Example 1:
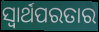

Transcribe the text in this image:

ସ୍ଵାର୍ଥପରତାର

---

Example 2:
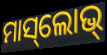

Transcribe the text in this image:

ମାସ୍‌ଲୋଭ୍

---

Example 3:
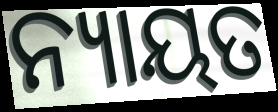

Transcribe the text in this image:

ନ୍ୟାୟତ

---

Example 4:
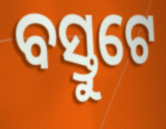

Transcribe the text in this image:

ବସ୍ତୁଟେ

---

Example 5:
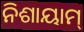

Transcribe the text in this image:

ନିଶାୟାମ୍